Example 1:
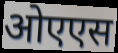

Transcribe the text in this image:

ओएएस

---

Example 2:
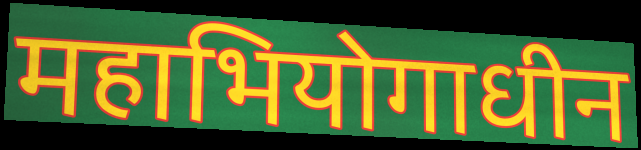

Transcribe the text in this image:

महाभियोगाधीन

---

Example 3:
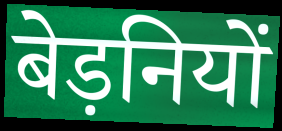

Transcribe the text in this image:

बेड़नियों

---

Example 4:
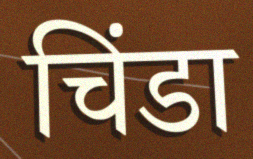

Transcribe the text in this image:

चिंडा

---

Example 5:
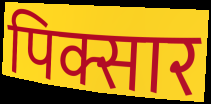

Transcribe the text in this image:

पिक्सार